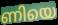
ണിയെ